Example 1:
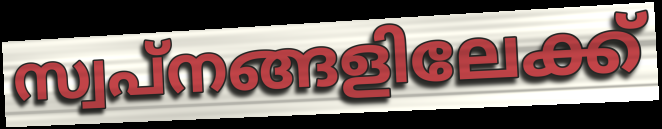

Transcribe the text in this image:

സ്വപ്നങ്ങളിലേക്ക്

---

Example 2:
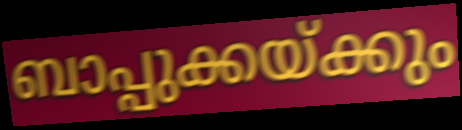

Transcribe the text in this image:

ബാപ്പുക്കയ്ക്കും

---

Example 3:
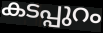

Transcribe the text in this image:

കടപ്പുറം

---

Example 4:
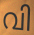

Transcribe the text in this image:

വി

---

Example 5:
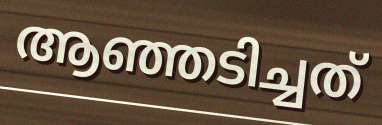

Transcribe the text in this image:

ആഞ്ഞടിച്ചത്